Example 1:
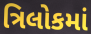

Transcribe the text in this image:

ત્રિલોકમાં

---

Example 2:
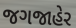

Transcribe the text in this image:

જગજાહેર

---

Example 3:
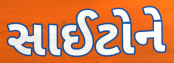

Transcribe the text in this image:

સાઈટોને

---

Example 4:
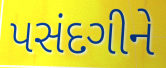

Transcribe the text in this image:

પસંદગીને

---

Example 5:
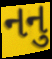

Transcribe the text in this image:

નનુ